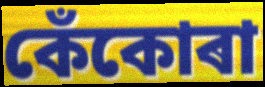
কেঁকোৰা